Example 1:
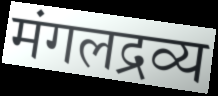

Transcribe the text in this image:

मंगलद्रव्य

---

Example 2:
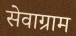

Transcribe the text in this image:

सेवाग्राम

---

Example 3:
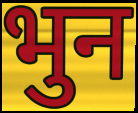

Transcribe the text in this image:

भुन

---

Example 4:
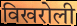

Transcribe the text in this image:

विखरोली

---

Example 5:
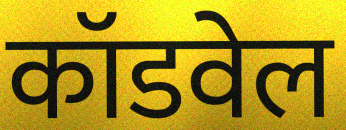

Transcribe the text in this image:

कॉडवेल